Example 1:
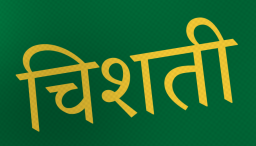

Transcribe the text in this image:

चिशती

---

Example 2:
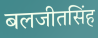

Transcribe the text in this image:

बलजीतसिंह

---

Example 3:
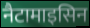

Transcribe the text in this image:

नैटामाइसिन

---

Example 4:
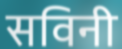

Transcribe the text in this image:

सविनी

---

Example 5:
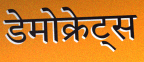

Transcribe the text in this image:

डेमोक्रेट्स